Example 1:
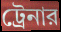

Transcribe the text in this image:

ট্রেনার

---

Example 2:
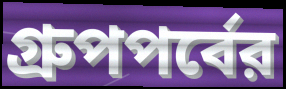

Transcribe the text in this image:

গ্রুপপর্বের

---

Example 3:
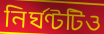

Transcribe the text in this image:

নির্ঘণ্টটিও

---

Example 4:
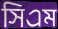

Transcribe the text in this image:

সিএম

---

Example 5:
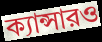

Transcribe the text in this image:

ক্যান্সারও